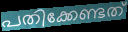
പതിക്കേണ്ടത്